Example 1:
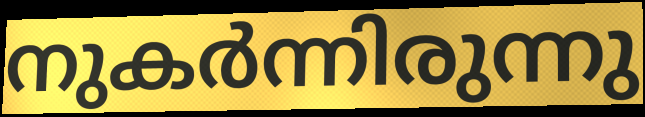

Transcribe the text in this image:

നുകർന്നിരുന്നു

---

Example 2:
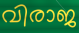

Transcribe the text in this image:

വിരാജ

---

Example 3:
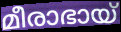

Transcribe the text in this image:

മീരാഭായ്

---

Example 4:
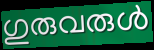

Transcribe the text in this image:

ഗുരുവരുൾ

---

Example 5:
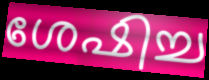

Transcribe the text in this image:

ശേഷിച്ച